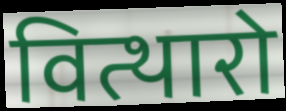
वित्थारो